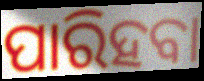
ପାରିହବା